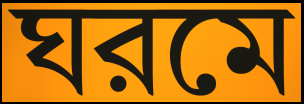
ঘরমে